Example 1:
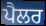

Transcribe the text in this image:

ਪੈਲਰ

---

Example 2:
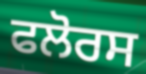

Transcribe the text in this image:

ਫਲੋਰਸ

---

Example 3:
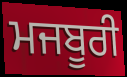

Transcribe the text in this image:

ਮਜਬੂਰੀ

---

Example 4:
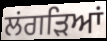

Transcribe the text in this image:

ਲਂਗੜਿਆਂ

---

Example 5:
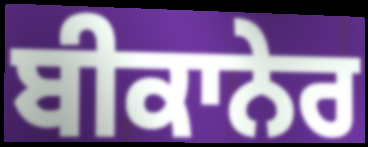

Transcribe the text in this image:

ਬੀਕਾਨੇਰ